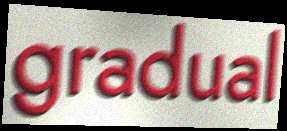
gradual